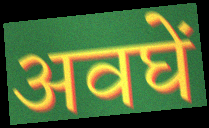
अवघें